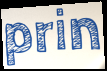
prin